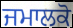
ਜਮਾਲਕੋ